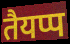
तैयप्प